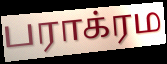
பராக்ரம